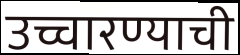
उच्चारण्याची